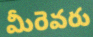
మీరెవరు